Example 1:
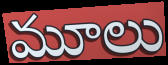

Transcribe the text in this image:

మూలు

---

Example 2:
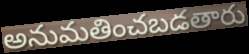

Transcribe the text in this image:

అనుమతించబడతారు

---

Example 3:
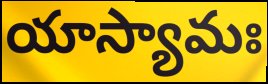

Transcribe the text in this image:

యాస్యామః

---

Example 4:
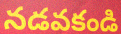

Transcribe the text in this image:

నడవకండి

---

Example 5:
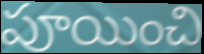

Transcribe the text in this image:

పూయించి